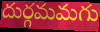
దుర్గమమగు